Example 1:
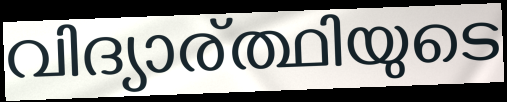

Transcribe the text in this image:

വിദ്യാര്ത്ഥിയുടെ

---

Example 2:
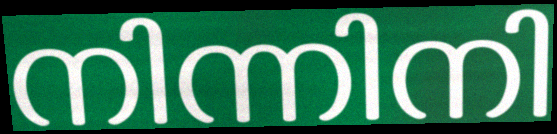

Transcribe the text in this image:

നിന്നിനി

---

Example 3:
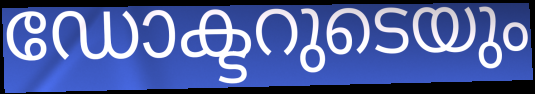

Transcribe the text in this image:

ഡോക്ടറുടെയും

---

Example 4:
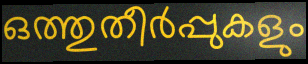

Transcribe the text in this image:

ഒത്തുതീർപ്പുകളും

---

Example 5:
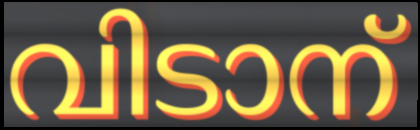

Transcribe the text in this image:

വിടാന്